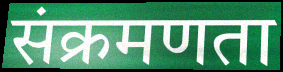
संक्रमणता